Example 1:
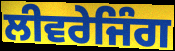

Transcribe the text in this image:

ਲੀਵਰੇਜਿੰਗ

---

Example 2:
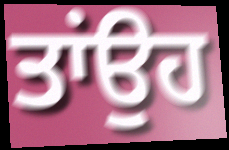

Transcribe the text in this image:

ਤਾਂਉਹ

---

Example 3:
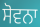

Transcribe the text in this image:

ਸੋਵਨਾ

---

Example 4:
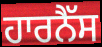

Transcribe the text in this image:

ਹਾਰਨੈੱਸ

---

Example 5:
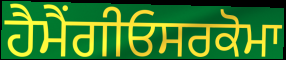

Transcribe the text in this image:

ਹੈਮੈਂਗੀਓਸਰਕੋਮਾ